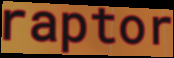
raptor